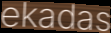
ekadas